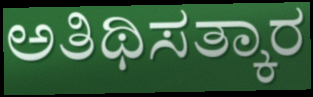
ಅತಿಥಿಸತ್ಕಾರ